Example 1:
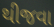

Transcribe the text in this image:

થીજવા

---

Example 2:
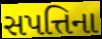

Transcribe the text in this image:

સપત્તિના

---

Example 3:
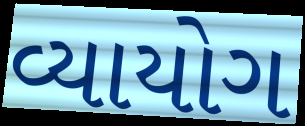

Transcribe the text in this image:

વ્યાયોગ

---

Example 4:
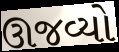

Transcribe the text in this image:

ઊજવ્યો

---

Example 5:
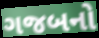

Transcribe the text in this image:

ગજબનો